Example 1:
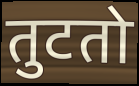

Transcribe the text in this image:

तुटतो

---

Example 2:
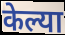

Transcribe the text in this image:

केल्या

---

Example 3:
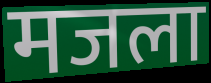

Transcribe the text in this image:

मजला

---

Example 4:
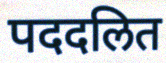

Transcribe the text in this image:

पददलित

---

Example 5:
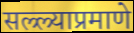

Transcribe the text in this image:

सल्ल्याप्रमाणे